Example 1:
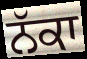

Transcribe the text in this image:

ਨੱਕਾ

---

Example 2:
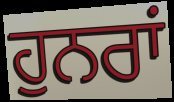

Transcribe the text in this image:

ਹੁਨਰਾਂ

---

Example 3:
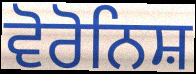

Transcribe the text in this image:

ਵੋਰੋਨਿਸ਼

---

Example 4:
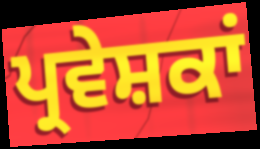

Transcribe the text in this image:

ਪ੍ਰਵੇਸ਼ਕਾਂ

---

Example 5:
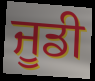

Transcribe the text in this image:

ਜੂਡੀ